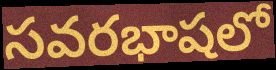
సవరభాషలో